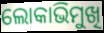
ଲୋକାଭିମୁଖି